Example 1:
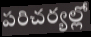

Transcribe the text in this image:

పరిచర్యల్లో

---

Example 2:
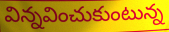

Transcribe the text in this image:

విన్నవించుకుంటున్న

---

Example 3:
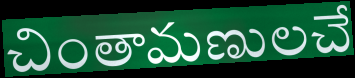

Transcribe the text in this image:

చింతామణులచే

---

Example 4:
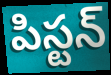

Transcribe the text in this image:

పిస్టన్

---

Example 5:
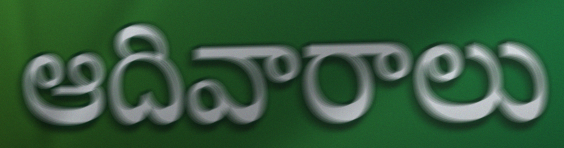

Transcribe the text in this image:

ఆదివారాలు